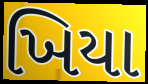
ખિયા